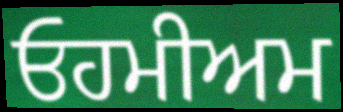
ਓਹਮੀਅਮ